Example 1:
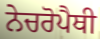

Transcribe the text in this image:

ਨੇਚਰੋਪੈਥੀ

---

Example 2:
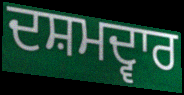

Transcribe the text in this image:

ਦਸ਼ਮਦ੍ਵਾਰ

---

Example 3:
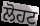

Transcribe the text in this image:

ਲੋਹਟ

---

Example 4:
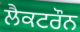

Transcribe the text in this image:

ਲੈਕਟਰੌਨ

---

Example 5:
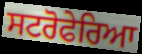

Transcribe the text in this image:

ਸਟਰੋਫੇਰਿਆ